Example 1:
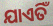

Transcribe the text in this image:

ଯାଏତିଁ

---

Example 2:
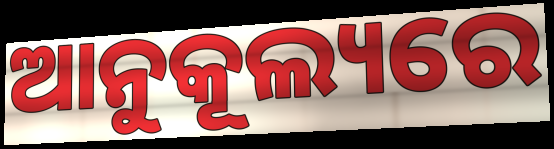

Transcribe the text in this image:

ଆନୁକୂଲ୍ୟରେ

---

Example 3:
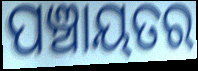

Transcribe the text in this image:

ପଞ୍ଚାୟତର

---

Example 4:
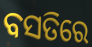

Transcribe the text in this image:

ବସତିରେ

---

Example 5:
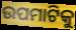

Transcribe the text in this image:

ଉପମାଟିକୁ